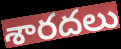
శారదలు